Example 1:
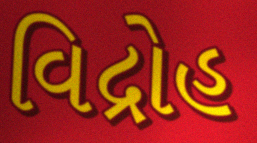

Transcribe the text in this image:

વિદ્રોહ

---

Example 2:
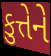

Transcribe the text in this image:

કુત્તેને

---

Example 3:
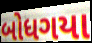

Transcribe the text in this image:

બોધગયા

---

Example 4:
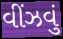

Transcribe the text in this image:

વીંઝવું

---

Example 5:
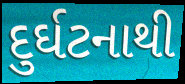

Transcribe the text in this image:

દુર્ઘટનાથી